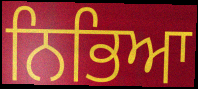
ਨਿਭਿਆ